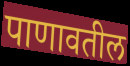
पाणावतील